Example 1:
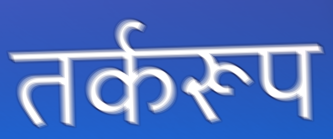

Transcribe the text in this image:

तर्करूप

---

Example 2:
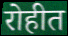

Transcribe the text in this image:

रोहीत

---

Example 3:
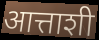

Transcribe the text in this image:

आत्ताशी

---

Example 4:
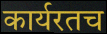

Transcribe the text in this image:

कार्यरतच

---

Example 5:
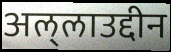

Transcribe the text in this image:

अल्लाउद्दीन